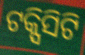
ଟକ୍ସିସିଟି